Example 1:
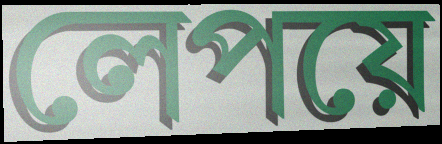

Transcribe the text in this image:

লেপয়ে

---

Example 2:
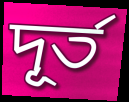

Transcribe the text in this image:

দূর্ত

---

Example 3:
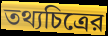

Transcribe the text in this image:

তথ্যচিত্রের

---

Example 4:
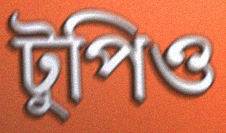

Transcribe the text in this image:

টুপিও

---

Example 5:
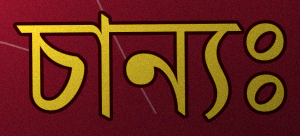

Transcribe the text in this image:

চান্যঃ